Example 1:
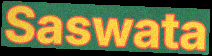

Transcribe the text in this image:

Saswata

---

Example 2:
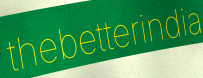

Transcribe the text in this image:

thebetterindia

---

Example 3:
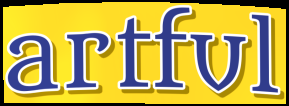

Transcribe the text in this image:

artful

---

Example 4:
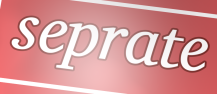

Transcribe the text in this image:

seprate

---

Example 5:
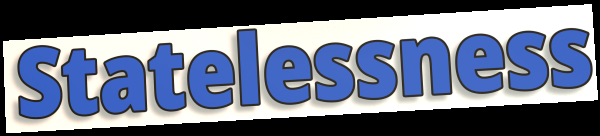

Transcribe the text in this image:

Statelessness